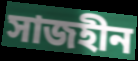
সাজহীন